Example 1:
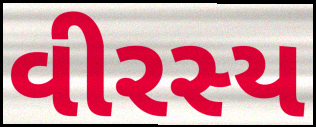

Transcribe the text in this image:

વીરસ્ય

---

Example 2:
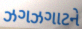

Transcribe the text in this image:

ઝગઝગાટને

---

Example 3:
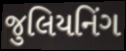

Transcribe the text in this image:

જુલિયનિંગ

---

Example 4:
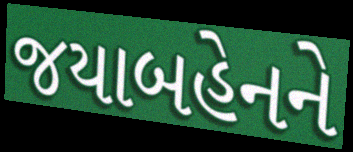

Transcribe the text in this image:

જયાબહેનને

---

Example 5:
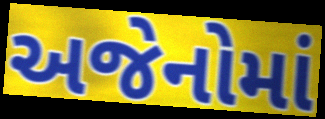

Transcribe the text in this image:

અજેનોમાં